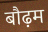
बौढ़म